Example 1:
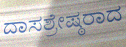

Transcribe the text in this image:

ದಾಸಶ್ರೇಷ್ಠರಾದ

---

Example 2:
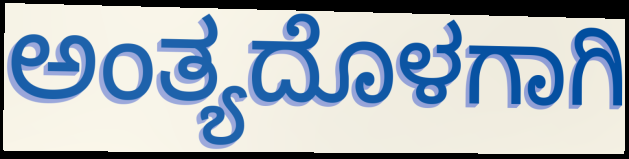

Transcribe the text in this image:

ಅಂತ್ಯದೊಳಗಾಗಿ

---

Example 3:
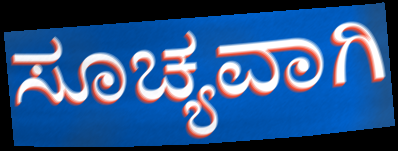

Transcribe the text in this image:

ಸೂಚ್ಯವಾಗಿ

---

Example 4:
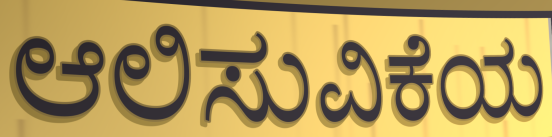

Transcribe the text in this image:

ಆಲಿಸುವಿಕೆಯ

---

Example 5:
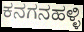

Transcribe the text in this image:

ಕನಗನಹಳ್ಳಿ